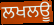
ਲਖਲਊ